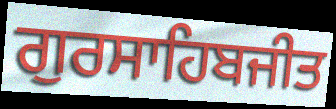
ਗੁਰਸਾਹਿਬਜੀਤ